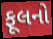
ફૂલનો